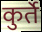
कुर्ते